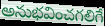
అనుభవించగలిగే